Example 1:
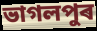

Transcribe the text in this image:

ভাগলপুৰ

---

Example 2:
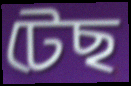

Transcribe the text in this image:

টেছ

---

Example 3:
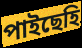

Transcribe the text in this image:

পাইছেহি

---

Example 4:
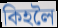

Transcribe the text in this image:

কিহলৈ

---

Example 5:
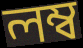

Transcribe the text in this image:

লম্ব